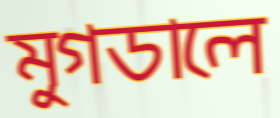
মুগডালে